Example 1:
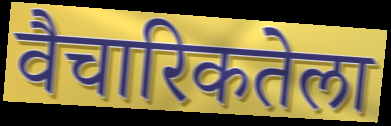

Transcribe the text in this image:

वैचारिकतेला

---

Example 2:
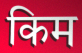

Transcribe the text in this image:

किम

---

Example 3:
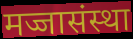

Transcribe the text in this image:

मज्जासंस्था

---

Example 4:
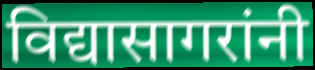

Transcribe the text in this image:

विद्यासागरांनी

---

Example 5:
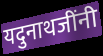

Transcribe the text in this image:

यदुनाथजींनी